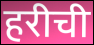
हरीची